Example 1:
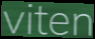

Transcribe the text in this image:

viten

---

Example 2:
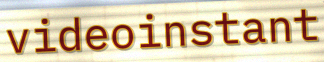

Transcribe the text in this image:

videoinstant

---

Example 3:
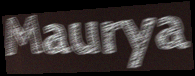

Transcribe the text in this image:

Maurya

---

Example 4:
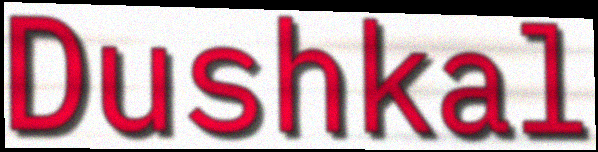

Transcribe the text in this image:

Dushkal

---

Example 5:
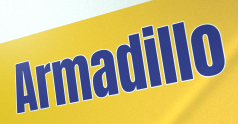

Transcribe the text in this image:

Armadillo